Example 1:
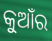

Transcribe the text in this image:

କୁଆଁର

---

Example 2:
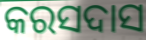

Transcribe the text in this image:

କରସଦାସ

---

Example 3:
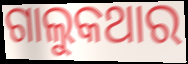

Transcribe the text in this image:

ଗାଲୁକଥାର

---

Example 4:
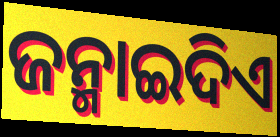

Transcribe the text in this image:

ଜନ୍ମାଇଦିଏ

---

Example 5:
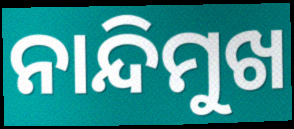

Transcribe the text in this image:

ନାନ୍ଦିମୁଖ